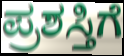
ಪ್ರಶಸ್ತಿಗೆ